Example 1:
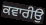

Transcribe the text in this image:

ਕਵਾਰੀਉ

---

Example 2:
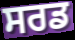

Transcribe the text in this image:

ਸਰਡ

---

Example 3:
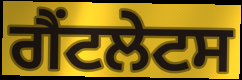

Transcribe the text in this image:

ਗੈਂਟਲੇਟਸ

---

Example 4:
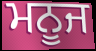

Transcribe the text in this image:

ਮਨੂਜ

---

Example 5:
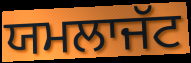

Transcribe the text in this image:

ਯਮਲਾਜੱਟ